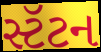
સ્ટૅટન